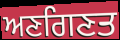
ਅਣਗਿਣਤ